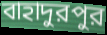
বাহাদুরপুর